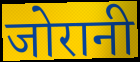
जोरानी